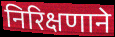
निरिक्षणाने